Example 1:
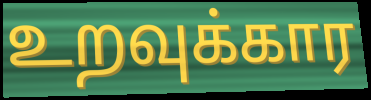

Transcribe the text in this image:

உறவுக்கார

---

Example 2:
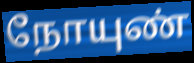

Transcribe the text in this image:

நோயுண்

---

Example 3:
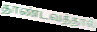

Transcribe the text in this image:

தாண்டவத்தால்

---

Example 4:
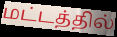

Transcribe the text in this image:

மட்டத்தில்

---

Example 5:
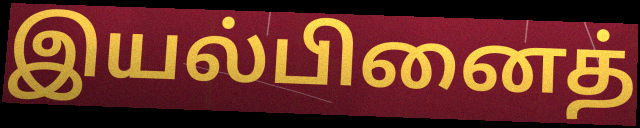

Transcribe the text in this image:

இயல்பினைத்